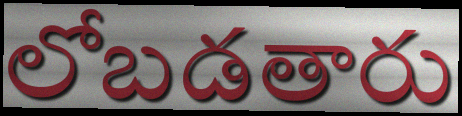
లోబడతారు